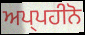
ਅਪ੍ਪਹੀਨੋ